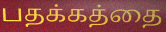
பதக்கத்தை